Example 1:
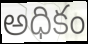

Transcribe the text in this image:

అధికం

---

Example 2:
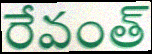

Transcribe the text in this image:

రేవంత్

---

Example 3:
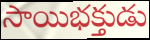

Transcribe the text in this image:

సాయిభక్తుడు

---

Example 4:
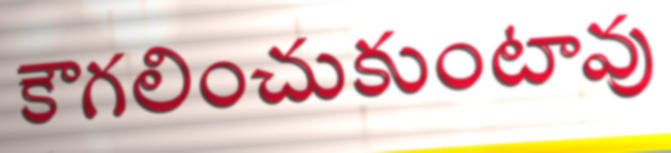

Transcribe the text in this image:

కౌగలించుకుంటావు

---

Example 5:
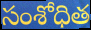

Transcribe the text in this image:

సంశోధిత